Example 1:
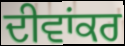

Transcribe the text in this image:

ਦੀਵਾਂਕਰ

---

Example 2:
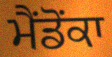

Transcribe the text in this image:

ਮੈਂਡੋਂਕਾ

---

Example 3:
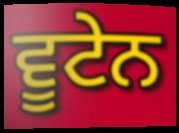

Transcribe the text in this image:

ਵੂਟੇਨ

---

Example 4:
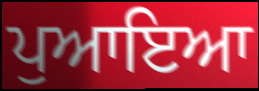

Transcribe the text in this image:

ਪੁਆਇਆ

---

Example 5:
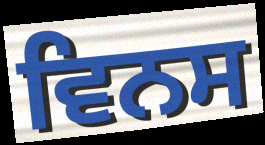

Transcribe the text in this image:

ਵਿਨਸ